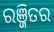
ରଞ୍ଜିତର